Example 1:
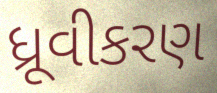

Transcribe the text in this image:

ધ્રૂવીકરણ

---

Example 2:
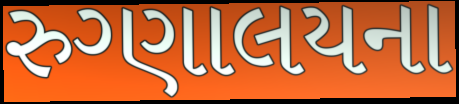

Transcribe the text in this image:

રુગ્ણાલયના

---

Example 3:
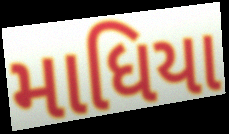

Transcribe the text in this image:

માધિયા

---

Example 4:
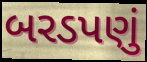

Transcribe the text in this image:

બરડપણું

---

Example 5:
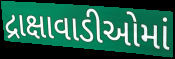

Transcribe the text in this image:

દ્રાક્ષાવાડીઓમાં